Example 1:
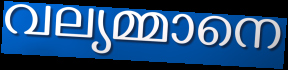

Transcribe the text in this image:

വല്യമ്മാനെ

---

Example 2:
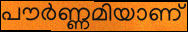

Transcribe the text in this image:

പൗർണ്ണമിയാണ്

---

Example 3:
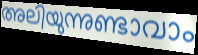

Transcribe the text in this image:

അലിയുന്നുണ്ടാവാം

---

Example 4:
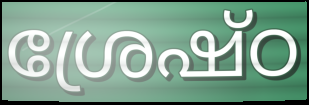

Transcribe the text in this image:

ശ്രേഷ്ഠ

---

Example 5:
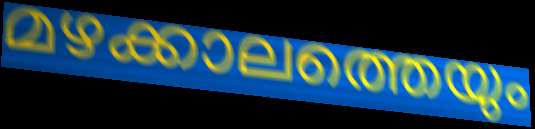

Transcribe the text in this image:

മഴക്കാലത്തെയും